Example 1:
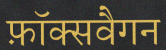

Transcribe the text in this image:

फ़ॉक्सवैगन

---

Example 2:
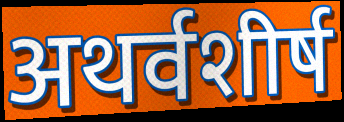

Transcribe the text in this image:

अथर्वशीर्ष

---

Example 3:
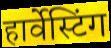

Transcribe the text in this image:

हार्वेस्टिंग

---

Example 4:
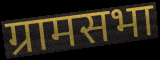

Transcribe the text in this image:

ग्रामसभा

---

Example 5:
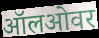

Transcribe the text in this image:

ऑलओवर